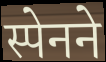
स्पेनने